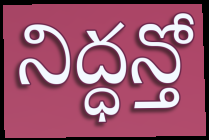
నిద్ధన్తో